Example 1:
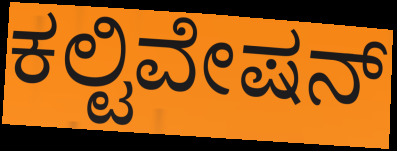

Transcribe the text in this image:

ಕಲ್ಟಿವೇಷನ್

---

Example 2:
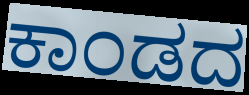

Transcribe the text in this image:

ಕಾಂಡದ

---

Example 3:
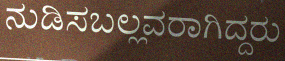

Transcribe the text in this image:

ನುಡಿಸಬಲ್ಲವರಾಗಿದ್ದರು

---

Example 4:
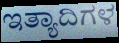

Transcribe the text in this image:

ಇತ್ಯಾದಿಗಳ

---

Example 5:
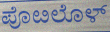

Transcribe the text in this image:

ಪೊೞಲೊಳ್